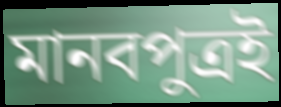
মানবপুত্রই